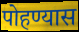
पोहण्यास